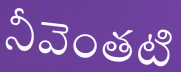
నీవెంతటి